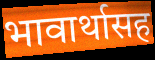
भावार्थासह